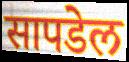
सापडेल